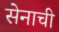
सेनाची